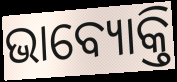
ଭାବ୍ୟୋକ୍ତି